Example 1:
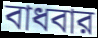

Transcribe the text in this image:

বাধবার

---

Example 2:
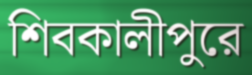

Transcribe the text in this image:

শিবকালীপুরে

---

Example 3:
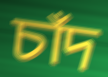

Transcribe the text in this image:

চাঁদ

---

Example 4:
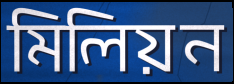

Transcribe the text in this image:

মিলিয়ন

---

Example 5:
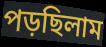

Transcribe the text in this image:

পড়ছিলাম